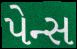
પેન્સ